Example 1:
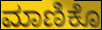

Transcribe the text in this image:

ಮಾಣಿಕೊ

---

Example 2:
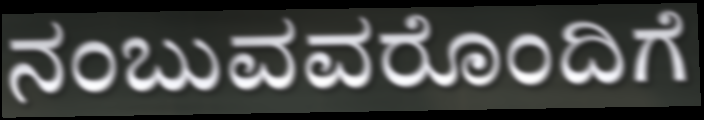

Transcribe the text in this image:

ನಂಬುವವರೊಂದಿಗೆ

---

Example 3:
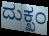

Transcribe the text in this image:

ದುಕ್ಖಂ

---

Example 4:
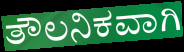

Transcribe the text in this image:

ತೌಲನಿಕವಾಗಿ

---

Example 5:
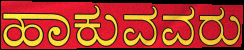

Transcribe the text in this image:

ಹಾಕುವವರು